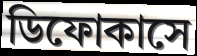
ডিফোকাসে